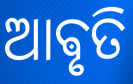
ଆଵୃତି